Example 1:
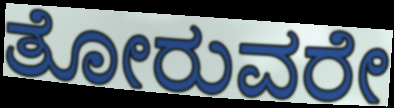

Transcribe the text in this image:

ತೋರುವರೇ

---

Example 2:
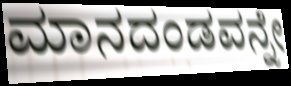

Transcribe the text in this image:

ಮಾನದಂಡವನ್ನೇ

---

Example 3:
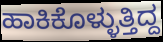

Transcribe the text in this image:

ಹಾಕಿಕೊಳ್ಳುತ್ತಿದ್ದ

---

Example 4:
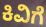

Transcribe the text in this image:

ಕಿವಿಗೆ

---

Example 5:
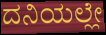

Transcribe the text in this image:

ದನಿಯಲ್ಲೇ